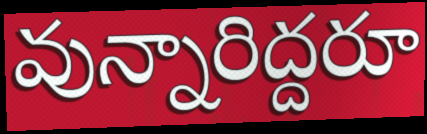
వున్నారిద్దరూ